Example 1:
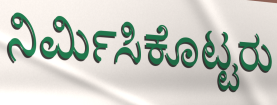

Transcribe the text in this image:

ನಿರ್ಮಿಸಿಕೊಟ್ಟರು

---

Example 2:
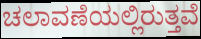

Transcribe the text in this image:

ಚಲಾವಣೆಯಲ್ಲಿರುತ್ತವೆ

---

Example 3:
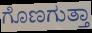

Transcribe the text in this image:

ಗೊಣಗುತ್ತಾ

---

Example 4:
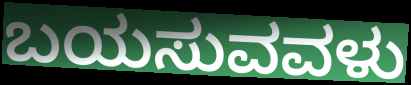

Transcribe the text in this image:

ಬಯಸುವವಳು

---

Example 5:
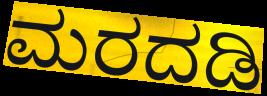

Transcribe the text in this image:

ಮರದಡಿ